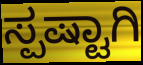
ಸ್ಪಷ್ಟಾಗಿ